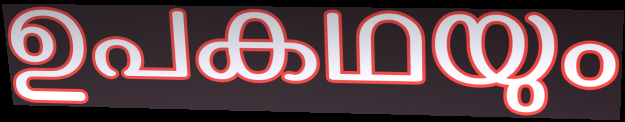
ഉപകഥയും